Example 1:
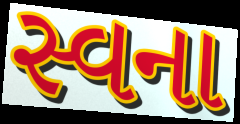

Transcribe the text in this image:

સ્વના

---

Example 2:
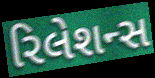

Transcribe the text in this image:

રિલેશન્સ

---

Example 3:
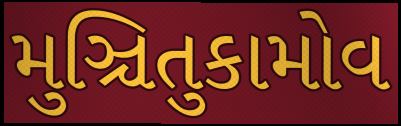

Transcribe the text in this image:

મુઞ્ચિતુકામોવ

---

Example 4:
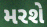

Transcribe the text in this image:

મરશે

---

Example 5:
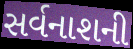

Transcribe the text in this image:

સર્વનાશની